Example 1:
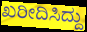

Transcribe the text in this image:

ಖರೀದಿಸಿದ್ದು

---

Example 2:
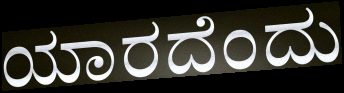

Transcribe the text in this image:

ಯಾರದೆಂದು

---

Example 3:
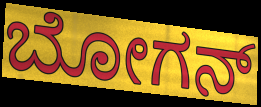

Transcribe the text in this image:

ಬೋಗನ್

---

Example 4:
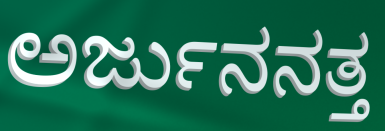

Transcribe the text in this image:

ಅರ್ಜುನನತ್ತ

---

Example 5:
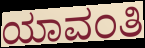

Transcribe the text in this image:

ಯಾವಂತಿ